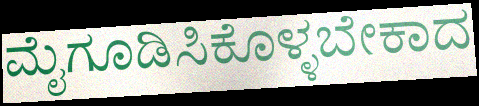
ಮೈಗೂಡಿಸಿಕೊಳ್ಳಬೇಕಾದ